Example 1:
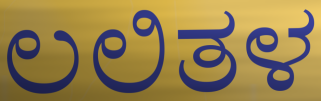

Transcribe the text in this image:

ಲಲಿತಳ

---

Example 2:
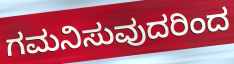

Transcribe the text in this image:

ಗಮನಿಸುವುದರಿಂದ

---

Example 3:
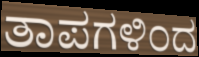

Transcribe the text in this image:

ತಾಪಗಳಿಂದ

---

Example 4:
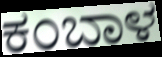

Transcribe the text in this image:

ಕಂಬಾಳ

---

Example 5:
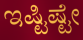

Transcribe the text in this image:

ಇಷ್ಟಿಷ್ಟೇ